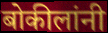
बोकीलांनी